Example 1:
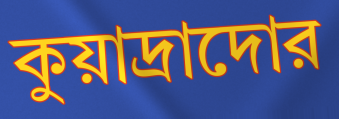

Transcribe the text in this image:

কুয়াদ্রাদোর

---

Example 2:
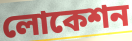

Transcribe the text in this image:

লোকেশন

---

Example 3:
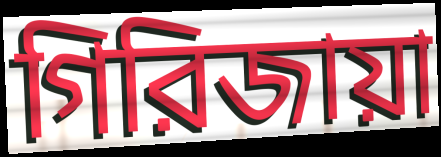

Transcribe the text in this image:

গিরিজায়া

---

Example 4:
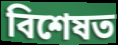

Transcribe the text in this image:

বিশেষত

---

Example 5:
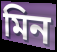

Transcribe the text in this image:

মিন